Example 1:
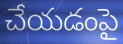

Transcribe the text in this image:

చేయడంపై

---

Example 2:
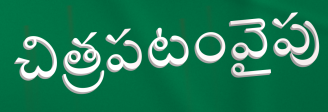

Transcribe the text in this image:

చిత్రపటంవైపు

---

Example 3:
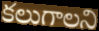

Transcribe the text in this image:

కలుగాలని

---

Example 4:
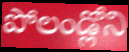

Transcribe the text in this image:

పోలండ్లోని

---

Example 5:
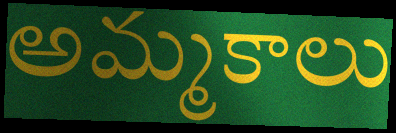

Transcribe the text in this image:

అమ్మకాలు